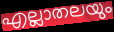
എല്ലാതലയും